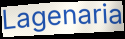
Lagenaria